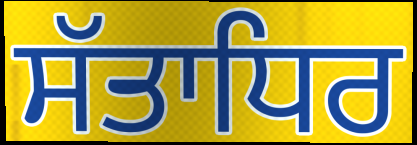
ਸੱਤਾਧਿਰ